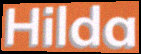
Hilda